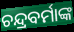
ଚନ୍ଦ୍ରବର୍ମାଙ୍କ